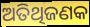
ଅତିଥିଜଣକ